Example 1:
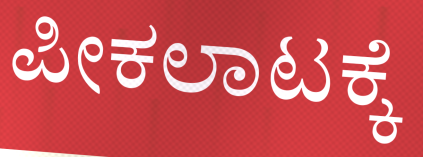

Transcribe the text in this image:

ಪೀಕಲಾಟಕ್ಕೆ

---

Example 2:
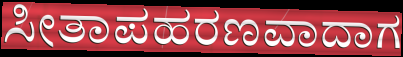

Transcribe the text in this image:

ಸೀತಾಪಹರಣವಾದಾಗ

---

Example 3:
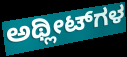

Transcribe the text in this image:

ಅಥ್ಲೀಟ್‌ಗಳ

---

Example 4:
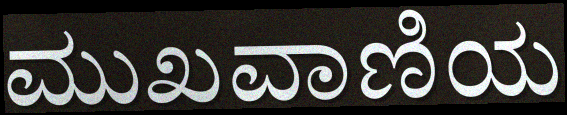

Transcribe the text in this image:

ಮುಖವಾಣಿಯ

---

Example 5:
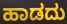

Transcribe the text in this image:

ಹಾಡದು